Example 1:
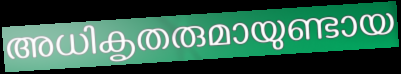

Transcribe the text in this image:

അധികൃതരുമായുണ്ടായ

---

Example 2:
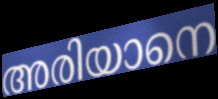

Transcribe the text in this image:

അരിയാനെ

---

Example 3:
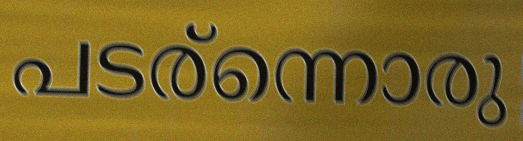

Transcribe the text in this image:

പടര്ന്നൊരു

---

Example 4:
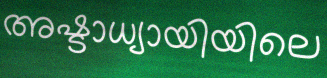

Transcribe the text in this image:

അഷ്ടാധ്യായിയിലെ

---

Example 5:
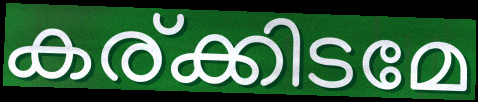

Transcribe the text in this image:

കര്ക്കിടമേ